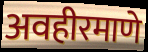
अवहीरमाणे